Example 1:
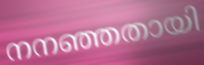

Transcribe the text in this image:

നനഞ്ഞതായി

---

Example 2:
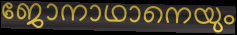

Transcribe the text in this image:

ജോനാഥാനെയും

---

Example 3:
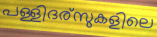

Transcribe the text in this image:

പള്ളിദര്സുകളിലെ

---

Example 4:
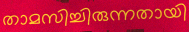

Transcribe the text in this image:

താമസിച്ചിരുന്നതായി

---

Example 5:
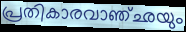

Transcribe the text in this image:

പ്രതികാരവാഞ്ഛയും